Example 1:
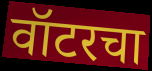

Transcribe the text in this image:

वॉटरचा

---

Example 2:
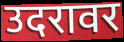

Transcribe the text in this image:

उदरावर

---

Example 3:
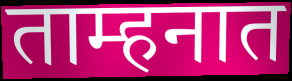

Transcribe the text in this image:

ताम्हनात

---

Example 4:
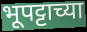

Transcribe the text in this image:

भूपट्टाच्या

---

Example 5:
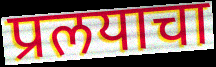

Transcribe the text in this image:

प्रलयाचा